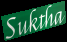
Suktha